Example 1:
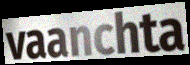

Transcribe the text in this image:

vaanchta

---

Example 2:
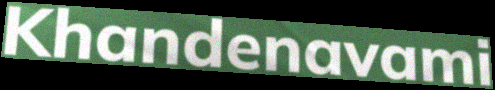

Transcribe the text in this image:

Khandenavami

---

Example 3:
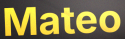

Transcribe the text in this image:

Mateo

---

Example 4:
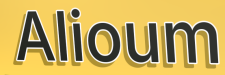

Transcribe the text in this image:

Alioum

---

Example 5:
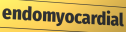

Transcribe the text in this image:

endomyocardial